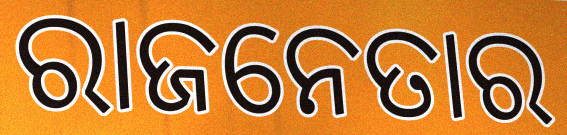
ରାଜନେତାର